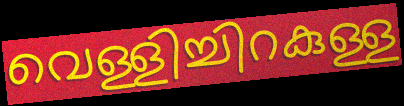
വെള്ളിച്ചിറകുള്ള